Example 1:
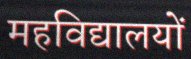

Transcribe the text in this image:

महविद्यालयों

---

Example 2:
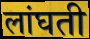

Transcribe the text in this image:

लांघती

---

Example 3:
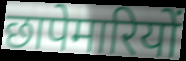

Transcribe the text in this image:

छापेमारियों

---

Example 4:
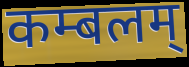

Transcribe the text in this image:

कम्बलम्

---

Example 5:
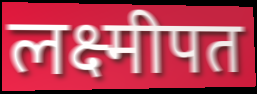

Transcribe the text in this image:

लक्ष्मीपत